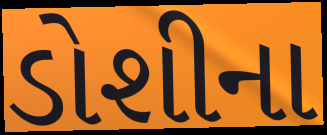
ડોશીના